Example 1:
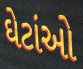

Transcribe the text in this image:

ઘેટાંઓ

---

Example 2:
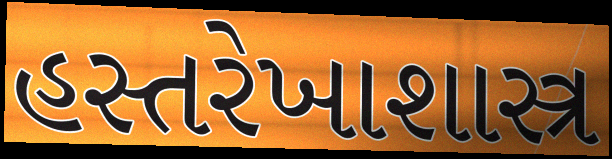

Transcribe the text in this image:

હસ્તરેખાશાસ્ત્ર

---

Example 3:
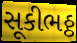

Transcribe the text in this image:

સૂકીભઠ્ઠ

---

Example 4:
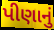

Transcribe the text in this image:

પીણાનું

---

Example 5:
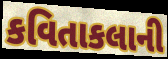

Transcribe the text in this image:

કવિતાકલાની